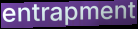
entrapment